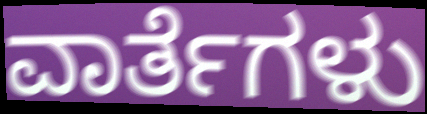
ವಾರ್ತೆಗಳು